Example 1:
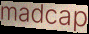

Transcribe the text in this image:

madcap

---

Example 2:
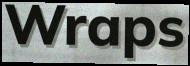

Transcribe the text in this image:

Wraps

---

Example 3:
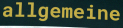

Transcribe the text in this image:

allgemeine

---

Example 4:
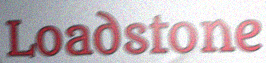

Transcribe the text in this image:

Loadstone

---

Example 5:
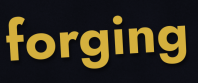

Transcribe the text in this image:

forging